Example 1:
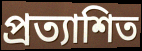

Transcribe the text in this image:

প্ৰত্যাশিত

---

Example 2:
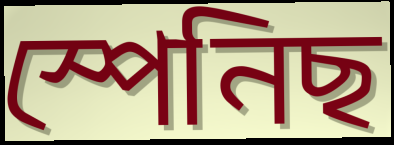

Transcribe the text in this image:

স্পেনিছ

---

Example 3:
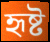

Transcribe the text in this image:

হৃষ্ট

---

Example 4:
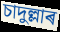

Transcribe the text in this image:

চাদুল্লাৰ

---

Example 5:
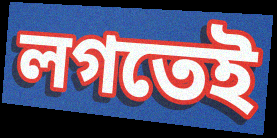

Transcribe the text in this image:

লগতেই